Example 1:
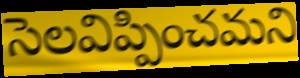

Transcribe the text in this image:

సెలవిప్పించమని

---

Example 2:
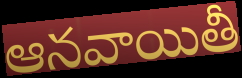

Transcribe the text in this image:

ఆనవాయితీ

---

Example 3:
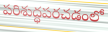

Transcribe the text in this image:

పరిశుద్ధపరచడంలో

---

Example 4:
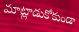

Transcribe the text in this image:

మాట్లాడుకోకుండా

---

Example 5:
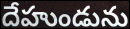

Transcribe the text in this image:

దేహుండును